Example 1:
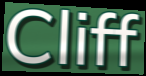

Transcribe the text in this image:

Cliff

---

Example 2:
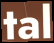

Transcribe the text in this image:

tal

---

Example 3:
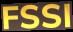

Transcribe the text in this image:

FSSI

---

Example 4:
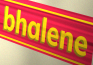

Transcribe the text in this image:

bhalene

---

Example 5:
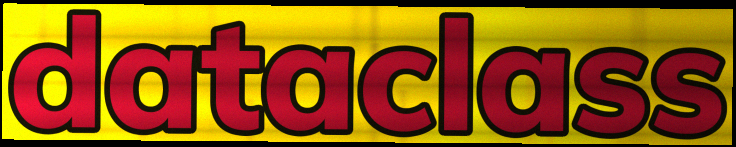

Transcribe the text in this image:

dataclass